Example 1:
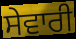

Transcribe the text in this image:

ਸੇਵਾਰੀ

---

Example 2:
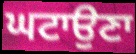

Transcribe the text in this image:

ਘਟਾਉਣਾ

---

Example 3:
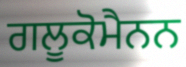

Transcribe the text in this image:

ਗਲੂਕੋਮੈਨਨ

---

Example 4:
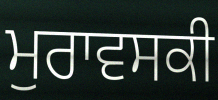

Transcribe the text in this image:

ਮੁਰਾਵਸਕੀ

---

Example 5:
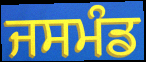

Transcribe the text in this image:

ਜਸਮੰਡ